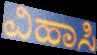
ವಿಹಾಸಿ